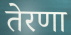
तेरणा